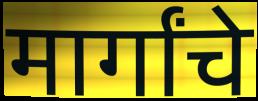
मार्गांचे